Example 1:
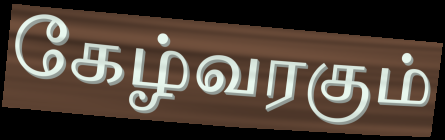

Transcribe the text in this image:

கேழ்வரகும்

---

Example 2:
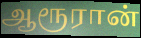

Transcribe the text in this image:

ஆரூரான்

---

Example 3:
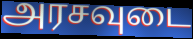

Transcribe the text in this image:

அரசவுடை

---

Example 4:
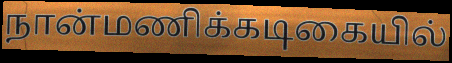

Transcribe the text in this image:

நான்மணிக்கடிகையில்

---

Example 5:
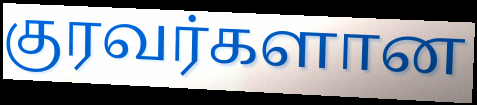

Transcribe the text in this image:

குரவர்களான